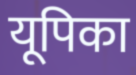
यूपिका